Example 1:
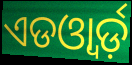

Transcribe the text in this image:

ଏଡଓ୍ବାର୍ଡ଼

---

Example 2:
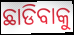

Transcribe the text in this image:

ଛାଡିବାକୁ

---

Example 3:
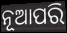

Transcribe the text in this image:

ନୂଆପରି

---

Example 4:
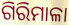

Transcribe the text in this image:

ଗିରିମାଳା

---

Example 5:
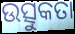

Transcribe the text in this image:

ଉତ୍ସୁକତା